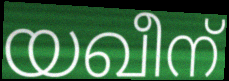
യഖീന്